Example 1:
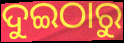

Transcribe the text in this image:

ଦୁଇଠାରୁ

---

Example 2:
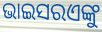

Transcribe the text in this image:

ଭାଇସରଏଙ୍କୁ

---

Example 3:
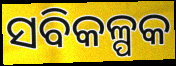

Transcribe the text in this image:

ସବିକଳ୍ପକ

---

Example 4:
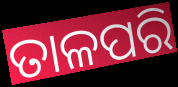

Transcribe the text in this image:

ତାଳପରି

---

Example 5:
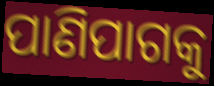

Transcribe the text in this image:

ପାଣିପାଗକୁ